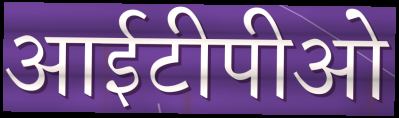
आईटीपीओ